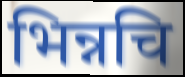
भिन्नचि